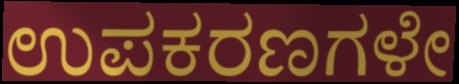
ಉಪಕರಣಗಳೇ